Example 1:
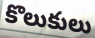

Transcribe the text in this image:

కొలుకులు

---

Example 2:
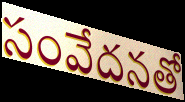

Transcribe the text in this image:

సంవేదనతో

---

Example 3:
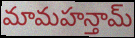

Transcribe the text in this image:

మామహన్తామ్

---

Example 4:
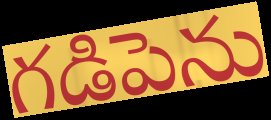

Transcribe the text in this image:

గడిపెను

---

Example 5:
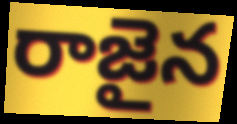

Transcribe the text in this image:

రాజైన